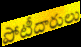
పోటీదారులు